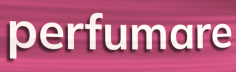
perfumare